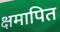
क्षमापित